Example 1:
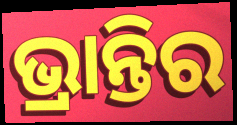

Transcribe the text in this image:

ଭ୍ରାନ୍ତିର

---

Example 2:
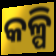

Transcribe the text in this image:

କଳ୍ପି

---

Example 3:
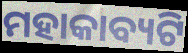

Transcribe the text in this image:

ମହାକାବ୍ୟଟି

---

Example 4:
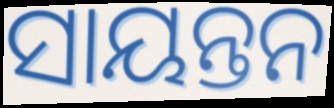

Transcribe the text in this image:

ସାୟନ୍ତନ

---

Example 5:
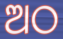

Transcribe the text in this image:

ଅଠ